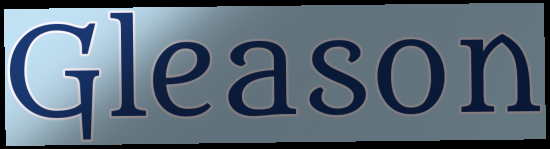
Gleason